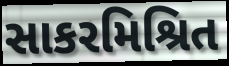
સાકરમિશ્રિત